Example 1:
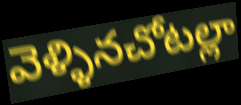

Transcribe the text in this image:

వెళ్ళినచోటల్లా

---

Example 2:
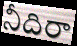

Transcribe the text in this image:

నీదిరా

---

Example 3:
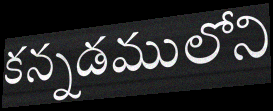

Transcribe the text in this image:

కన్నడములోని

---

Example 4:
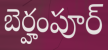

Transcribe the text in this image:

బెర్హంపూర్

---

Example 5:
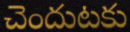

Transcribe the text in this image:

చెందుటకు